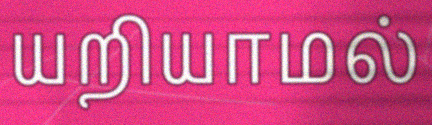
யறியாமல்